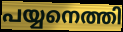
പയ്യനെത്തി